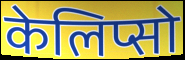
केलिप्सो